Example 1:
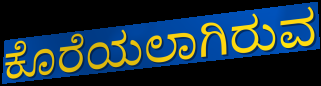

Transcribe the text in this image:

ಕೊರೆಯಲಾಗಿರುವ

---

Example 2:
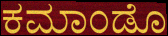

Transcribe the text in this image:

ಕಮಾಂಡೊ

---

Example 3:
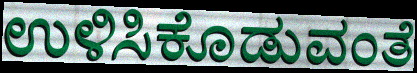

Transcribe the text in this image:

ಉಳಿಸಿಕೊಡುವಂತೆ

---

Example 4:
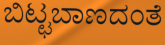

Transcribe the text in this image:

ಬಿಟ್ಟಬಾಣದಂತೆ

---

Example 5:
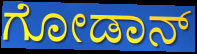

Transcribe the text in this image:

ಗೋಡಾನ್